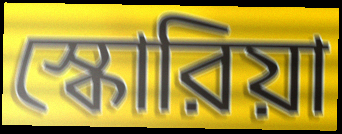
স্কোরিয়া